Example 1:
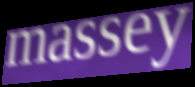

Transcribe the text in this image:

massey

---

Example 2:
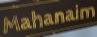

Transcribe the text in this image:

Mahanaim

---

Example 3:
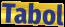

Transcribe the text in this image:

Tabol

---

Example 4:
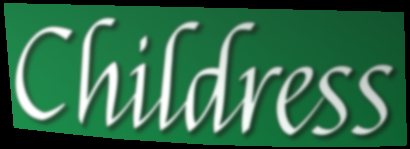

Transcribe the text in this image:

Childress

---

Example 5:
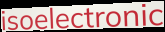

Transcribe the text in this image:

isoelectronic